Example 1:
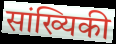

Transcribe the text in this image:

सांख्यिकी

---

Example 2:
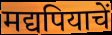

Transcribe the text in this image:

मद्यपियाचें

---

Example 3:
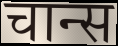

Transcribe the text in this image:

चान्स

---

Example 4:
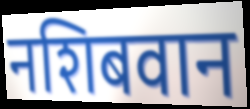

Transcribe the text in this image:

नशिबवान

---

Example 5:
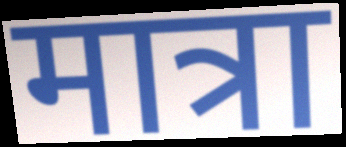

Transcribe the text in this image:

मात्रा